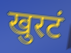
खुरटं